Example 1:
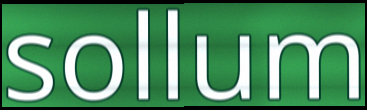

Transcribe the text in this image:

sollum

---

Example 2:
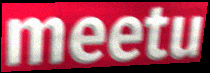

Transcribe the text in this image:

meetu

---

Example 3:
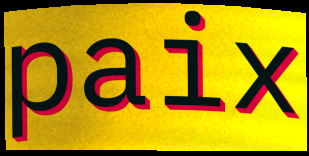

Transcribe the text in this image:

paix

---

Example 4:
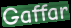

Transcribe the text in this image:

Gaffar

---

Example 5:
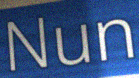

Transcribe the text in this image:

Nun